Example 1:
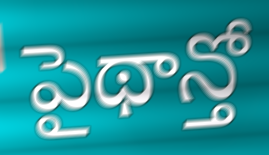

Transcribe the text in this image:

పైథాన్తో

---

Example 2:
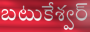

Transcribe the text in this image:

బటుకేశ్వర్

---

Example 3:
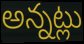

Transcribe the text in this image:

అన్నట్లు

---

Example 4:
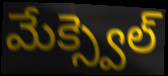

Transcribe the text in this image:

మేక్స్వెల్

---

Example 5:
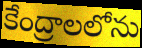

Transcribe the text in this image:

కేంద్రాలలోను